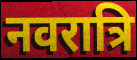
नवरात्रि